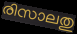
രിസാലതു